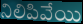
నిలిపివేయి